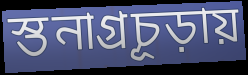
স্তনাগ্রচূড়ায়